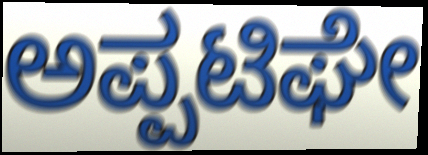
ಅಪ್ಪಟಿಘೇ